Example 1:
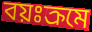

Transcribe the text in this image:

বয়ঃক্রমে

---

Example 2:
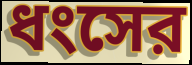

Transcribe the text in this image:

ধংসের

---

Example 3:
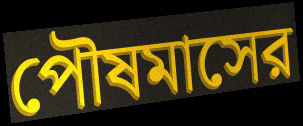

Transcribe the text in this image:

পৌষমাসের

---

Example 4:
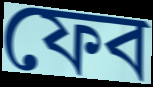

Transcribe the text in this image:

ফেব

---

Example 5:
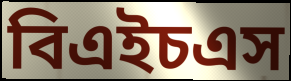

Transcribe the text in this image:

বিএইচএস